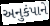
અનુકંપાને